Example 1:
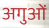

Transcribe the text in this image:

अगुओं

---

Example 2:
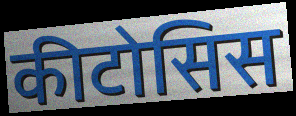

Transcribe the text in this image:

कीटोसिस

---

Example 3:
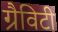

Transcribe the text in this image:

ग्रैविटी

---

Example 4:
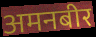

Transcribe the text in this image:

अमनबीर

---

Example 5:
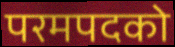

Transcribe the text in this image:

परमपदको